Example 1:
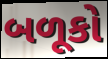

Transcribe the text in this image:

બળૂકો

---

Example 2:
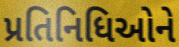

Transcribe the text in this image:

પ્રતિનિધિઓને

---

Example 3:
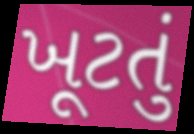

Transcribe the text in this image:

ખૂટતું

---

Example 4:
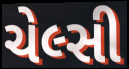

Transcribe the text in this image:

ચેલ્સી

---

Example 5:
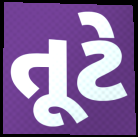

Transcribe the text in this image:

તૂટે